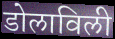
डोलाविली